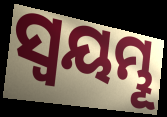
ସ୍ଵୟମ୍ଭୂ